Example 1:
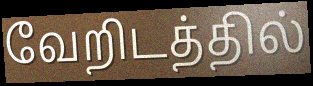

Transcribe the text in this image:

வேறிடத்தில்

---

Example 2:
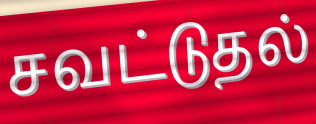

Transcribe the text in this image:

சவட்டுதல்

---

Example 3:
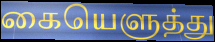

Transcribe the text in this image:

கையெளுத்து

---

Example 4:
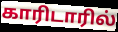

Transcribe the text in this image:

காரிடாரில்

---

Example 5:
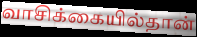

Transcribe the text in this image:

வாசிக்கையில்தான்